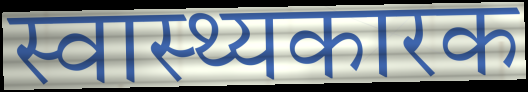
स्वास्थ्यकारक